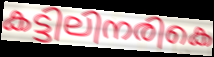
കട്ടിലിനരികെ